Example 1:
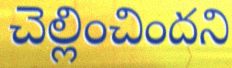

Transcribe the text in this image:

చెల్లించిందని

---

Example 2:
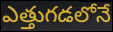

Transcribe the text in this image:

ఎత్తుగడలోనే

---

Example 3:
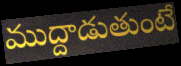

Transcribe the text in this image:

ముద్దాడుతుంటే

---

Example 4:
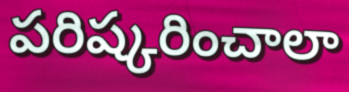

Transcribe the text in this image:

పరిష్కరించాలా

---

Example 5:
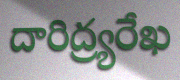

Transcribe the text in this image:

దారిద్ర్యరేఖ